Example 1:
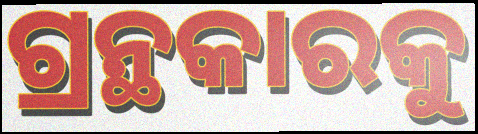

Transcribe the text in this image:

ଗ୍ରନ୍ଥକାରକୁ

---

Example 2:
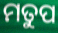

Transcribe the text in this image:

ମତୁପ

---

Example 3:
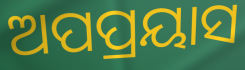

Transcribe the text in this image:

ଅପପ୍ରୟାସ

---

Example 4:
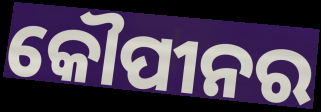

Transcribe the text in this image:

କୌପୀନର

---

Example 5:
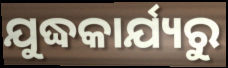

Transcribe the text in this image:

ଯୁଦ୍ଧକାର୍ଯ୍ୟରୁ